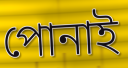
পোনাই